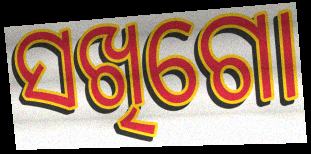
ସଖିଗୋ